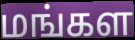
மங்கள